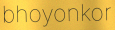
bhoyonkor